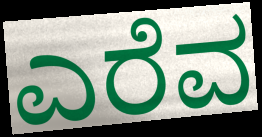
ಎರೆವ